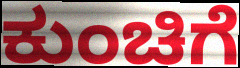
ಕುಂಚಿಗೆ